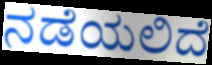
ನಡೆಯಲಿದೆ